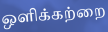
ஒளிக்கற்றை